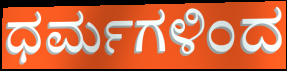
ಧರ್ಮಗಳಿಂದ